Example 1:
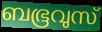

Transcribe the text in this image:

ബഭൂവുസ്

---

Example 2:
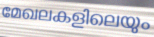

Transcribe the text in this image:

മേഖലകളിലെയും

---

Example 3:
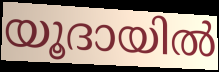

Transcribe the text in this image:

യൂദായിൽ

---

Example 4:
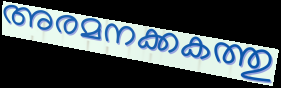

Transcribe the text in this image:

അരമനക്കകത്തു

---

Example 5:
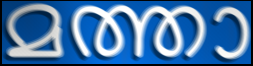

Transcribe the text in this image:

മത്താ